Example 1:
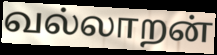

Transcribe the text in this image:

வல்லாறன்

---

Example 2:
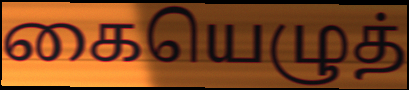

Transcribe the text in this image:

கையெழுத்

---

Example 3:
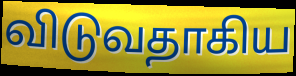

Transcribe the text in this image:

விடுவதாகிய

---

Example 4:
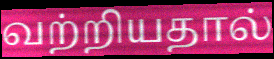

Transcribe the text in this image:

வற்றியதால்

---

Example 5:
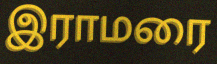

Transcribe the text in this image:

இராமரை